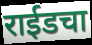
राईडचा